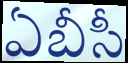
ఏబీసీ